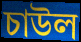
চাউল